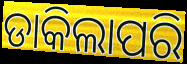
ଡାକିଲାପରି